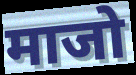
माजो